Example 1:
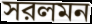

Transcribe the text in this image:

সরলমন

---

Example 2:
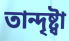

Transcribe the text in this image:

তান্দৃষ্ট্বা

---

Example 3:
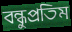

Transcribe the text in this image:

বন্ধুপ্রতিম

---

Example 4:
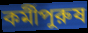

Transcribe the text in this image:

কর্মীপুরুষ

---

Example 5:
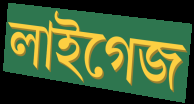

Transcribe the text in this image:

লাইগেজ